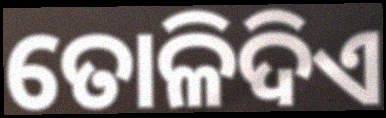
ତୋଳିଦିଏ